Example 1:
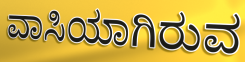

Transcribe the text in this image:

ವಾಸಿಯಾಗಿರುವ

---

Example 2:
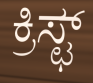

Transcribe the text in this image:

ಕ್ರಿಸ್ಟ್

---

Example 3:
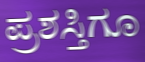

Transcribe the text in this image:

ಪ್ರಶಸ್ತಿಗೂ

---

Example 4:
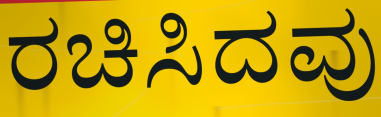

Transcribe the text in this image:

ರಚಿಸಿದವು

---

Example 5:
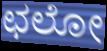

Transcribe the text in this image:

ಛಲೋ